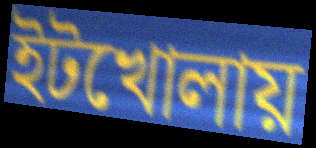
ইটখোলায়